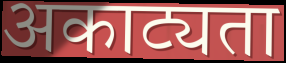
अकाट्यता